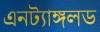
এনট্যাঙ্গলড